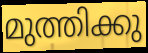
മുത്തിക്കു